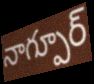
నాగ్పూర్